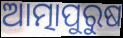
ଆତ୍ମାପୁରୁଷ